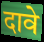
दावे